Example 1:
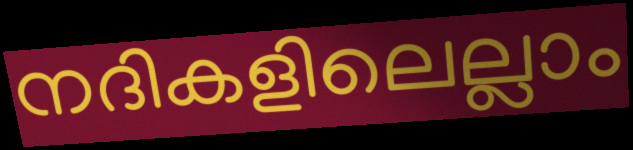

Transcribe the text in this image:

നദികളിലെല്ലാം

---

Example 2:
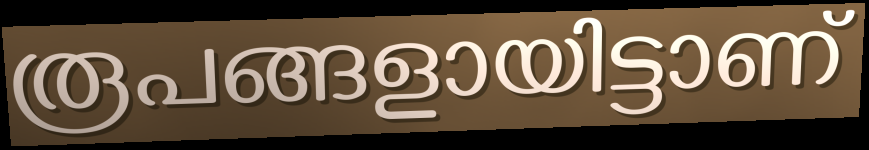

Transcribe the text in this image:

രൂപങ്ങളായിട്ടാണ്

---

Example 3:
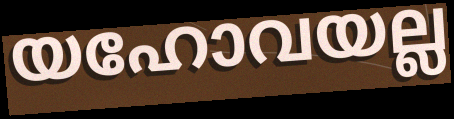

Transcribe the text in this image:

യഹോവയല്ല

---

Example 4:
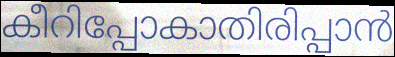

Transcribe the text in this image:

കീറിപ്പോകാതിരിപ്പാൻ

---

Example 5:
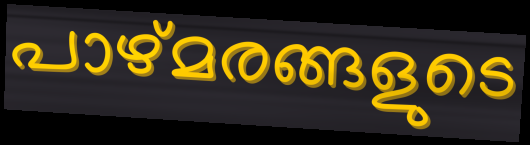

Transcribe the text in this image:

പാഴ്മരങ്ങളുടെ